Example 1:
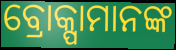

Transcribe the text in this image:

ବ୍ରୋକ୍ପାମାନଙ୍କ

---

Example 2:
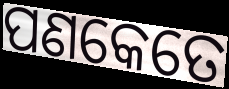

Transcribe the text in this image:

ପଣକେତେ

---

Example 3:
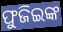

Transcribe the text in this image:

ଫୁଜିଇଙ୍କ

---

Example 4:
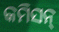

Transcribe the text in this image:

କମିସନ୍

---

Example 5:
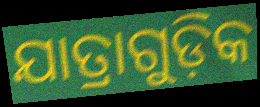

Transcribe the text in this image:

ଯାତ୍ରାଗୁଡ଼ିକ